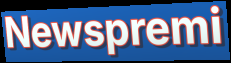
Newspremi